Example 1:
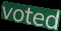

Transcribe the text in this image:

voted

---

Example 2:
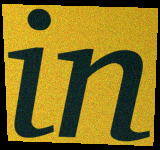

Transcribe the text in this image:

in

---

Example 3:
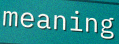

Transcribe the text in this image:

meaning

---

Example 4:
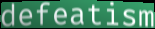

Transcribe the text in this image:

defeatism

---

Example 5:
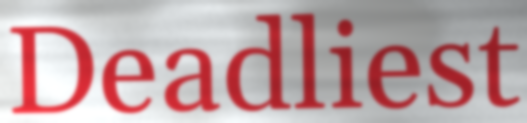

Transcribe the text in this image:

Deadliest